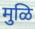
मुळि